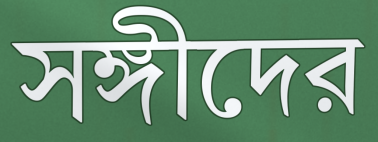
সঙ্গীদের